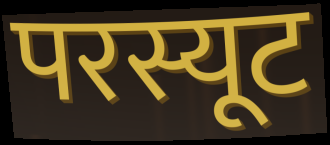
परस्यूट